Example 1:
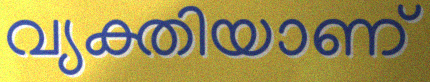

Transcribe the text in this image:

വ്യക്തിയാണ്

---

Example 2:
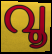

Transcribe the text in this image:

വൂ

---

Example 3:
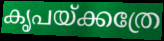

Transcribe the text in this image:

കൃപയ്ക്കത്രേ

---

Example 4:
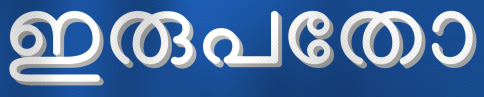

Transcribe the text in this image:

ഇരുപതോ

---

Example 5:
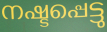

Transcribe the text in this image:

നഷ്ടപ്പെട്ടു